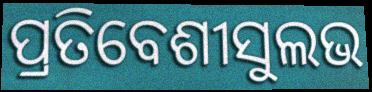
ପ୍ରତିବେଶୀସୁଲଭ